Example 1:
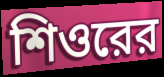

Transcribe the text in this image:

শিওরের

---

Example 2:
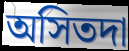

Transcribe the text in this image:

অসিতদা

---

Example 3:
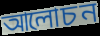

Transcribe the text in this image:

আলোচন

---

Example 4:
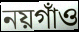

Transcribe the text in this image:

নয়গাঁও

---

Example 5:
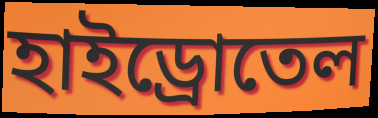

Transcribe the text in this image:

হাইড্রোতেল